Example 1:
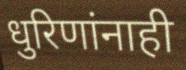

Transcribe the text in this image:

धुरिणांनाही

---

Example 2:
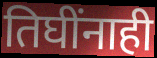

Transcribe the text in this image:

तिघींनाही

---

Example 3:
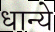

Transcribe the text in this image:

धान्ये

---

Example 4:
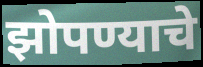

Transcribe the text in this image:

झोपण्याचे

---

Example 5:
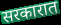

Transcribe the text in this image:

सरकारात